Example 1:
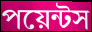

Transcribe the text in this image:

পয়েন্টস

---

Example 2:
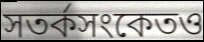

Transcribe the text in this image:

সতর্কসংকেতও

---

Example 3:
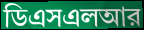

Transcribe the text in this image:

ডিএসএলআর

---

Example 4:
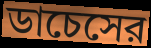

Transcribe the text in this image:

ডাচেসের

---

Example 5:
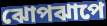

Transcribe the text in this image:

ঝোপঝাপে